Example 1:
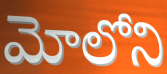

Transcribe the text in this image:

మోలోని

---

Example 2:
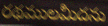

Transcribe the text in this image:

రథములమీదను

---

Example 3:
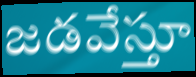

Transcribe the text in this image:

జడవేస్తూ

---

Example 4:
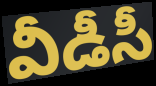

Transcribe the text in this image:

వీడీసీ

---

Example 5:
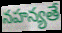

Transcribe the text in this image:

నహన్యతే